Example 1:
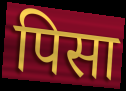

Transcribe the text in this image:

पिसा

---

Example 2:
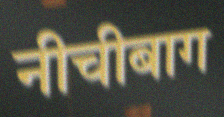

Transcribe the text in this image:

नीचीबाग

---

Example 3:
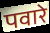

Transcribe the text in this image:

पवारे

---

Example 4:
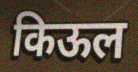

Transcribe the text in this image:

किऊल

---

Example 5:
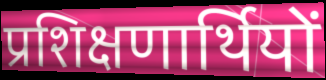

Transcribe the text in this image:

प्रशिक्षणार्थियों